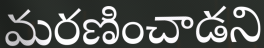
మరణించాడని